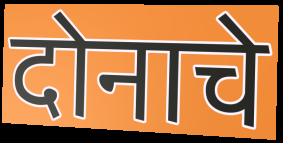
दोनाचे